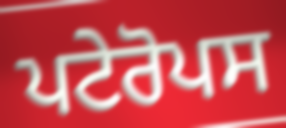
ਪਟੇਰੋਪਸ